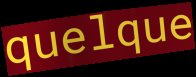
quelque